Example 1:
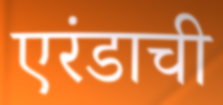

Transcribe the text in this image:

एरंडाची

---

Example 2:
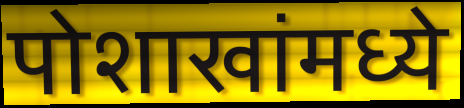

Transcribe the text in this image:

पोशाखांमध्ये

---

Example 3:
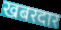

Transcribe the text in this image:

खबरदार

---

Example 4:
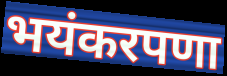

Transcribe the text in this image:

भयंकरपणा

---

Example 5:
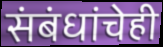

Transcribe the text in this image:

संबंधांचेही